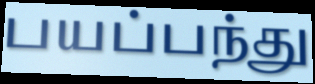
பயப்பந்து